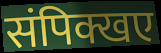
संपिक्खए